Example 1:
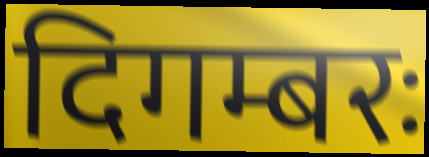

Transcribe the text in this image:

दिगम्बरः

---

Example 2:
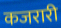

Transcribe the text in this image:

कजरारी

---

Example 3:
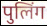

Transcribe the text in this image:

पुलिंग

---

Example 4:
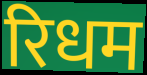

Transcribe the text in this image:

रिधम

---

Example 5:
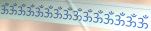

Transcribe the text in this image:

ॐॐॐॐॐॐॐॐॐॐॐॐॐॐॐ